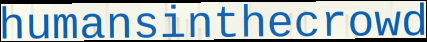
humansinthecrowd